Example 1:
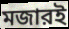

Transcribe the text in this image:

মজারই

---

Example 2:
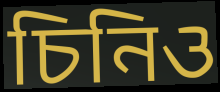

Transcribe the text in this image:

চিনিও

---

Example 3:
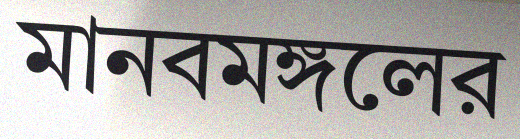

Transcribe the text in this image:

মানবমঙ্গলের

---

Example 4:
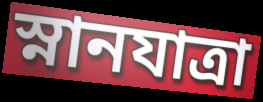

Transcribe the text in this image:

স্নানযাত্রা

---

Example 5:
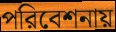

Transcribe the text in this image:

পরিবেশনায়